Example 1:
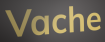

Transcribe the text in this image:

Vache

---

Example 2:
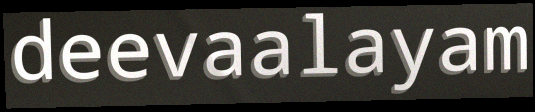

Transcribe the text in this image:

deevaalayam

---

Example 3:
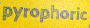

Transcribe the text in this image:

pyrophoric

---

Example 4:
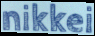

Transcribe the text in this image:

nikkei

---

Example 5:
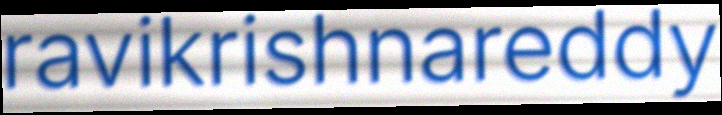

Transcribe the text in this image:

ravikrishnareddy